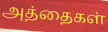
அத்தைகள்